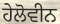
ਹੇਲੋਵੀਨ